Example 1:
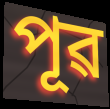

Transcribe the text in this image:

পূৱ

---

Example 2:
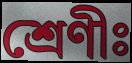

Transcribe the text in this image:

শ্ৰেণীঃ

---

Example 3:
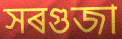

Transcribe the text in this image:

সৰগুজা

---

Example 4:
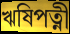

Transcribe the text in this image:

ঋষিপত্নী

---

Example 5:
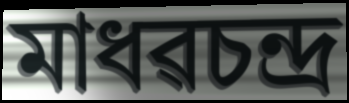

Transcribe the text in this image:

মাধৱচন্দ্ৰ